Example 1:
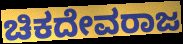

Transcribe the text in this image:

ಚಿಕದೇವರಾಜ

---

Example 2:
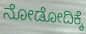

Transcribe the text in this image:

ನೋಡೋದಿಕ್ಕೆ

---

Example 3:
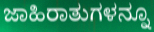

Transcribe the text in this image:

ಜಾಹಿರಾತುಗಳನ್ನೂ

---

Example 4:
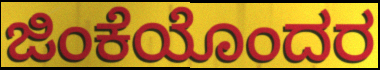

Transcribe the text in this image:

ಜಿಂಕೆಯೊಂದರ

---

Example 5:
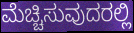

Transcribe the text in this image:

ಮೆಚ್ಚಿಸುವುದರಲ್ಲಿ